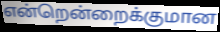
என்றென்றைக்குமான